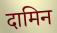
दामिन